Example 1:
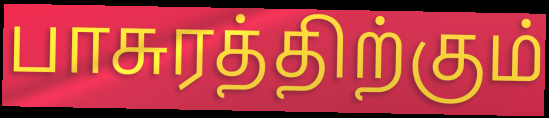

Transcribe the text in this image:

பாசுரத்திற்கும்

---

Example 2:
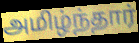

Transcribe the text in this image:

அமிழ்ந்தார்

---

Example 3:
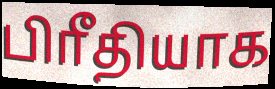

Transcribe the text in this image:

பிரீதியாக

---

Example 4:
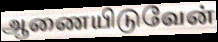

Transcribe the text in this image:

ஆணையிடுவேன்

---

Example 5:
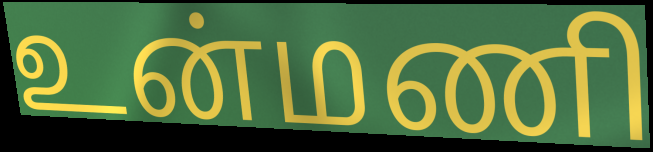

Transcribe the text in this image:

உன்மணி